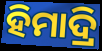
ହିମାଦ୍ରି